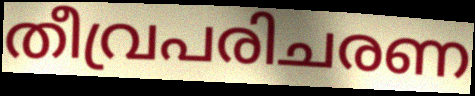
തീവ്രപരിചരണ